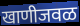
खाणीजवळ